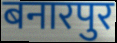
बनारपुर